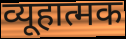
व्यूहात्मक